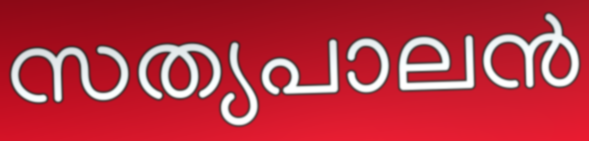
സത്യപാലൻ